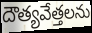
దౌత్యవేత్తలను